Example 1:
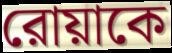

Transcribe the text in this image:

রোয়াকে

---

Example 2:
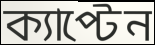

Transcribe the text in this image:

ক্যাপ্টেন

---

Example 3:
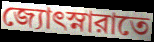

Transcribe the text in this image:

জ্যোৎস্নারাতে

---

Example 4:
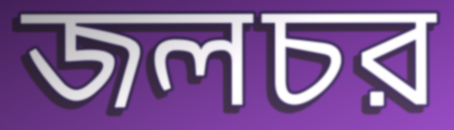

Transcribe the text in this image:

জলচর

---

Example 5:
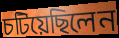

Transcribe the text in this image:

চটিয়েছিলেন